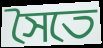
সৈতে